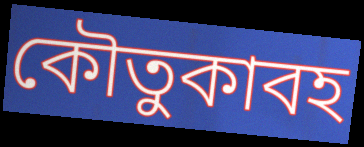
কৌতুকাবহ